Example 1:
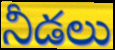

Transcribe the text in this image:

నీడలు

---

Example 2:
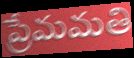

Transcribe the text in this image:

ప్రేమమతి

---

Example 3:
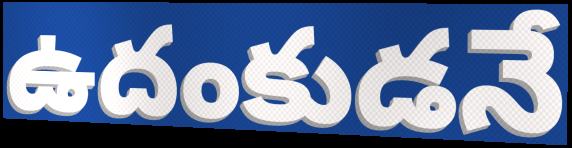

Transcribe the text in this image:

ఉదంకుడనే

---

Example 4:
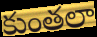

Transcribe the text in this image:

కుంతలా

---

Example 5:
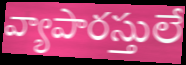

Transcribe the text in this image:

వ్యాపారస్తులే